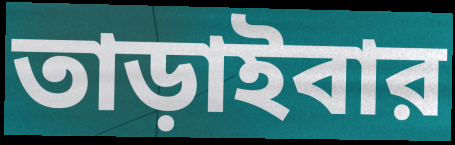
তাড়াইবার